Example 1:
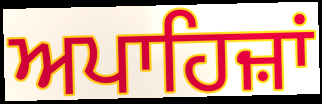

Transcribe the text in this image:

ਅਪਾਹਿਜ਼ਾਂ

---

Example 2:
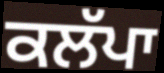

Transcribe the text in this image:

ਕਲੱਪਾ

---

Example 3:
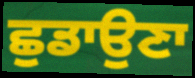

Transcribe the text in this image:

ਛੁਡਾਉਣਾ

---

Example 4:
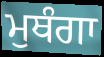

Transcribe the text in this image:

ਮੁਥੰਗਾ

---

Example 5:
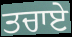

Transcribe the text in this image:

ਤਚਾਏ